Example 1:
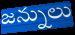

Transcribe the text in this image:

జన్నులు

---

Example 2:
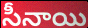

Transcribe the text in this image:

సీనాయి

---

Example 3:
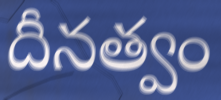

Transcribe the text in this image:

దీనత్వం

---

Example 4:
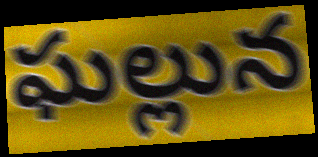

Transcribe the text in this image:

ఘల్లున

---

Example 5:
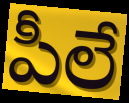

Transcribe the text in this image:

పీలే